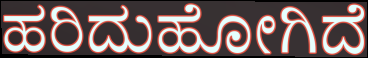
ಹರಿದುಹೋಗಿದೆ